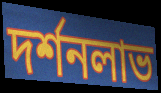
দর্শনলাভ